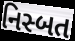
નિસ્બત